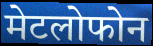
मेटलोफोन